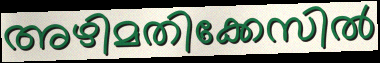
അഴിമതിക്കേസിൽ